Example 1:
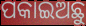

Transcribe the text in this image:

ପକାଇଅଛୁ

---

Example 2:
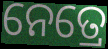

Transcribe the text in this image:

ନେତ୍ରେ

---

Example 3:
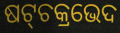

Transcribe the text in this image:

ଷଟ୍‌ଚକ୍ରଭେଦ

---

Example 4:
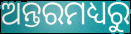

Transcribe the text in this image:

ଅନ୍ତରମଧ୍ୟରୁ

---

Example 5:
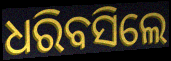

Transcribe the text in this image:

ଧରିବସିଲେ